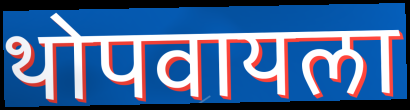
थोपवायला